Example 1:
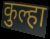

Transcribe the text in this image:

कुल्हा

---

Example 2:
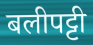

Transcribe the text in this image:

बलीपट्टी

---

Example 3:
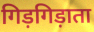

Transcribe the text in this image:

गिड़गिड़ाता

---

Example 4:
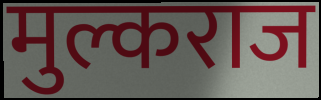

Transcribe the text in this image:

मुल्कराज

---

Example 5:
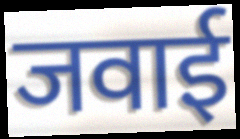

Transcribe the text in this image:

जवाई